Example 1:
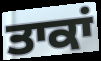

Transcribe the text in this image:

ਤਾਕਾਂ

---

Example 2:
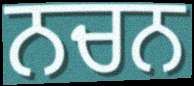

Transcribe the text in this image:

ਨਚਨ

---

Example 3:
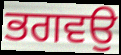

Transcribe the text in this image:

ਭਗਵਉ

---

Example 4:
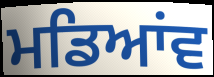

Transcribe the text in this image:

ਮਡਿਆਂਵ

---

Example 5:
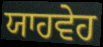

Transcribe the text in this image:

ਯਾਹਵੇਹ